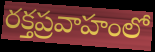
రక్తప్రవాహంలో